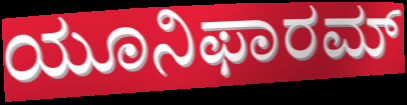
ಯೂನಿಫಾರಮ್